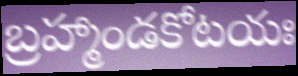
బ్రహ్మాండకోటయః